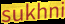
sukhni